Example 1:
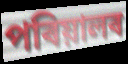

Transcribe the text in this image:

পৰিয়ালৰ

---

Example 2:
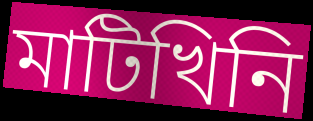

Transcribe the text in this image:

মাটিখিনি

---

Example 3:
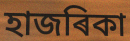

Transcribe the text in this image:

হাজৰিকা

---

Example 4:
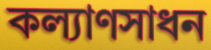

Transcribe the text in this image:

কল্যাণসাধন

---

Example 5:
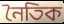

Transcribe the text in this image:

নৈতিক